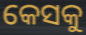
କେସକୁ